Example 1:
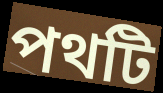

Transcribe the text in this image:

পথটি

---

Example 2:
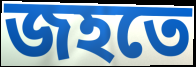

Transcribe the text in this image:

জহতে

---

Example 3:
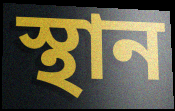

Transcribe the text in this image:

স্থান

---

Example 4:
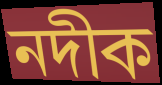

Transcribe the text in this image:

নদীক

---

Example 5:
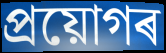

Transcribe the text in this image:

প্ৰয়োগৰ